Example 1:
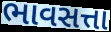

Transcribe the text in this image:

ભાવસત્તા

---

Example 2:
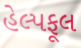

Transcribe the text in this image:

હેલ્પફૂલ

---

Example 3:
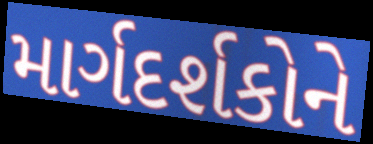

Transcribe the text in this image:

માર્ગદર્શકોને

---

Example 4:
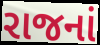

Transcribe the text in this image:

રાજનાં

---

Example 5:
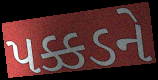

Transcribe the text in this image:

પક્કડને